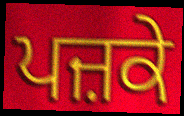
ਪਜ਼ਕੇ